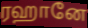
ரஹானே